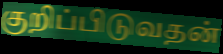
குறிப்பிடுவதன்